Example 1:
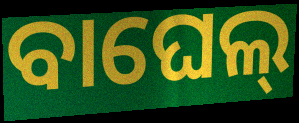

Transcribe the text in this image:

ବାଘେଲ୍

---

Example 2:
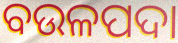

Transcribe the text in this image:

ବଉଳପଦା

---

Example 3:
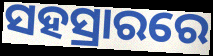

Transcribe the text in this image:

ସହସ୍ରାରରେ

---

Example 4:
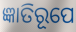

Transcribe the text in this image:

ଜ୍ଞାତିରୂପେ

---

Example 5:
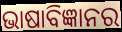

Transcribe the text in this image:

ଭାଷାବିଜ୍ଞାନର